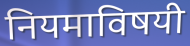
नियमाविषयी